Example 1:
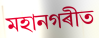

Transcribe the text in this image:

মহানগৰীত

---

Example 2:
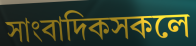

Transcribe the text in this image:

সাংবাদিকসকলে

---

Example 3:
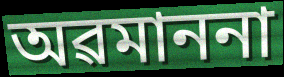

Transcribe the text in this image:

অৱমাননা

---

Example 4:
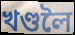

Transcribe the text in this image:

খণ্ডলৈ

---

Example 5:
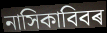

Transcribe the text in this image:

নাসিকাবিবৰ